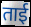
ताई